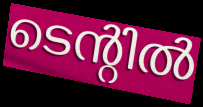
ടെന്റിൽ